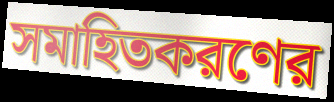
সমাহিতকরণের